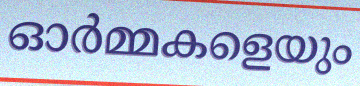
ഓർമ്മകളെയും